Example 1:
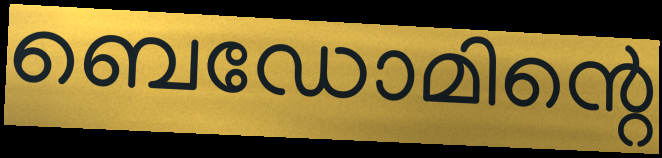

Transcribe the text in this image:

ബെഡോമിന്റെ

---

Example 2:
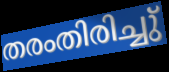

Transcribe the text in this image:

തരംതിരിച്ചു്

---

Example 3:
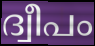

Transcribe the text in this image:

ദ്വീപം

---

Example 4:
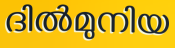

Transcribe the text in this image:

ദിൽമുനിയ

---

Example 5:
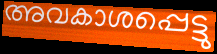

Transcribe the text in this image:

അവകാശപ്പെട്ടു